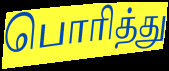
பொரித்து